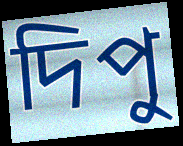
দিপু